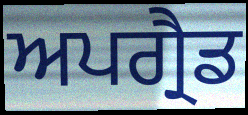
ਅਪਗ੍ਰੈਡ